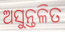
ଅସୁନ୍ତଳିତ